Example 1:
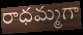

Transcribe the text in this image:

రాధమ్మగా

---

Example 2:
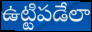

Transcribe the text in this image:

ఉట్టిపడేలా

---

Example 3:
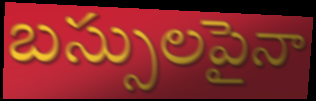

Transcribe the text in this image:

బస్సులపైనా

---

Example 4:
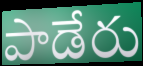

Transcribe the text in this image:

పాడేరు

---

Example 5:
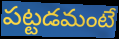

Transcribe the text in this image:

పట్టడమంటే